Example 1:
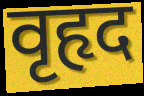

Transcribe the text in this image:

वृहृद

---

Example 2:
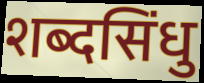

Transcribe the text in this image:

शब्दसिंधु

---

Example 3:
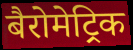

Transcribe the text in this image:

बैरोमेट्रिक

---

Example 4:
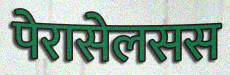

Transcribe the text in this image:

पेरासेलसस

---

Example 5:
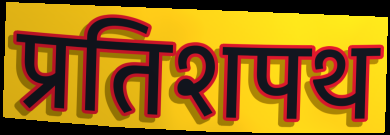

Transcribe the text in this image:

प्रतिशपथ